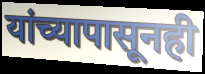
यांच्यापासूनही